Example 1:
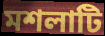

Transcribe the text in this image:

মশলাটি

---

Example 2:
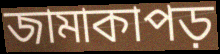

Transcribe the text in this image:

জামাকাপড়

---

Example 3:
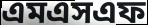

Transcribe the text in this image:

এমএসএফ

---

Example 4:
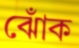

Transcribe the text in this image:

ঝোঁক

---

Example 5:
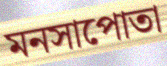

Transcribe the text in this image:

মনসাপোতা